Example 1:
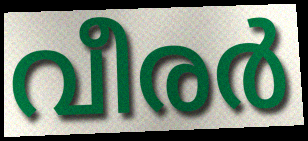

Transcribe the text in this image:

വീരർ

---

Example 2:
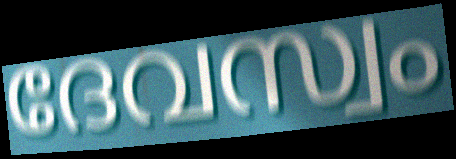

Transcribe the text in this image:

ദേവസ്വം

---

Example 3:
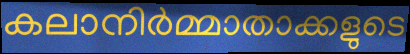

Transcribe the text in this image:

കലാനിർമ്മാതാക്കളുടെ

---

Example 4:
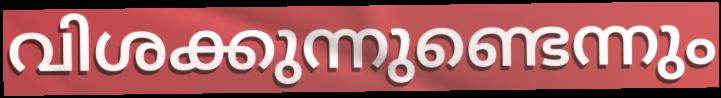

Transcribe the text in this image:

വിശക്കുന്നുണ്ടെന്നും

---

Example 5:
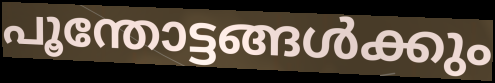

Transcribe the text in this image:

പൂന്തോട്ടങ്ങൾക്കും